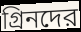
গ্রিনদের